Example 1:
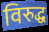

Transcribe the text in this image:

विरुद्ध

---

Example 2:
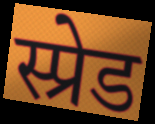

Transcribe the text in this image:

स्प्रेड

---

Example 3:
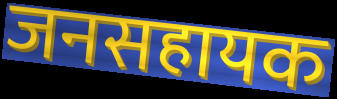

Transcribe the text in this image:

जनसहायक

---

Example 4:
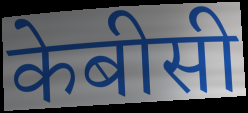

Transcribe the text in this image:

केबीसी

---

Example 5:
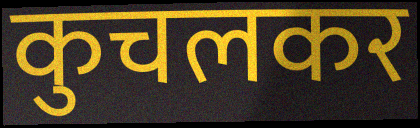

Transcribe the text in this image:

कुचलकर